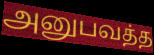
அனுபவத்த